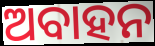
ଅବାହନ